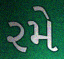
રમે